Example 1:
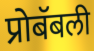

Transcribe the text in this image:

प्रोबॅबली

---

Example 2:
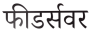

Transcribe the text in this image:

फीडर्सवर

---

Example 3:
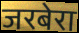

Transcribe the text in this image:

जरबेरा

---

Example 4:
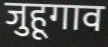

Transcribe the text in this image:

जुहूगाव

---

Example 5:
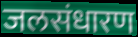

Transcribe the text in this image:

जलसंधारण